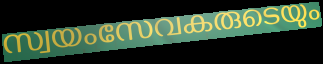
സ്വയംസേവകരുടെയും